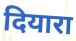
दियारा